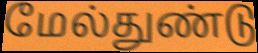
மேல்துண்டு